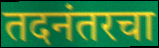
तदनंतरचा